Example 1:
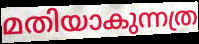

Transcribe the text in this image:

മതിയാകുന്നത്ര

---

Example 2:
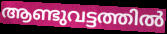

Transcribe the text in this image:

ആണ്ടുവട്ടത്തിൽ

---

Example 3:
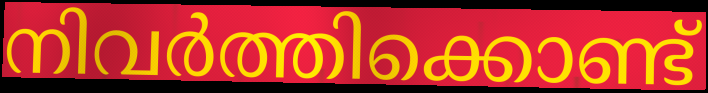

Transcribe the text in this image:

നിവർത്തിക്കൊണ്ട്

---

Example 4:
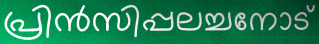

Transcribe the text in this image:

പ്രിൻസിപ്പലച്ചനോട്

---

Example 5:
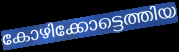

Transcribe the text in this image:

കോഴിക്കോട്ടെത്തിയ